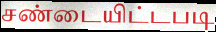
சண்டையிட்டபடி